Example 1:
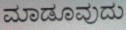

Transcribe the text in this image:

ಮಾಡೂವುದು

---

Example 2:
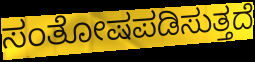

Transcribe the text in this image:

ಸಂತೋಷಪಡಿಸುತ್ತದೆ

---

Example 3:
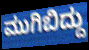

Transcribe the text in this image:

ಮುಗಿಬಿದ್ದು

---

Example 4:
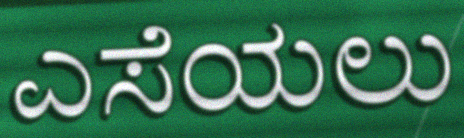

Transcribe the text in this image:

ಎಸೆಯಲು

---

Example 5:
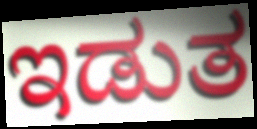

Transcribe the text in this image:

ಇಡುತ